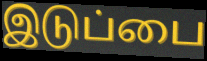
இடுப்பை